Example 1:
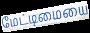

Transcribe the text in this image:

மேட்டிமையை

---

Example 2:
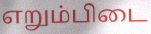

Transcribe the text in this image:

எறும்பிடை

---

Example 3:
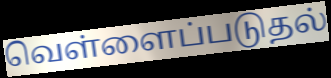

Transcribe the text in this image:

வெள்ளைப்படுதல்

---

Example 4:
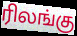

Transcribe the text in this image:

ரிலங்கு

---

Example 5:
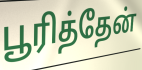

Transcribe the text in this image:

பூரித்தேன்